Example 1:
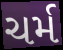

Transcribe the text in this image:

ચર્મ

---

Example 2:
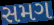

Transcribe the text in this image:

સમગ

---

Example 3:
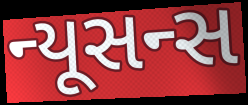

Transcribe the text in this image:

ન્યૂસન્સ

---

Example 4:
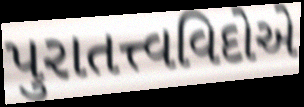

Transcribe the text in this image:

પુરાતત્ત્વવિદોએ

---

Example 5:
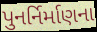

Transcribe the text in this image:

પુનર્નિર્માણના